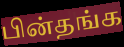
பின்தங்க